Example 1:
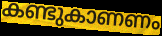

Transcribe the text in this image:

കണ്ടുകാണണം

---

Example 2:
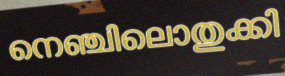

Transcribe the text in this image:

നെഞ്ചിലൊതുക്കി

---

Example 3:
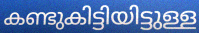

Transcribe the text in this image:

കണ്ടുകിട്ടിയിട്ടുള്ള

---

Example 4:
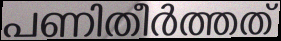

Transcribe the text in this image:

പണിതീർത്തത്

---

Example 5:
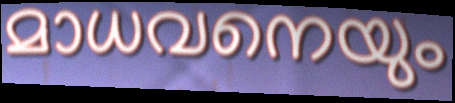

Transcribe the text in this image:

മാധവനെയും